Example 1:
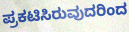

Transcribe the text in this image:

ಪ್ರಕಟಿಸಿರುವುದರಿಂದ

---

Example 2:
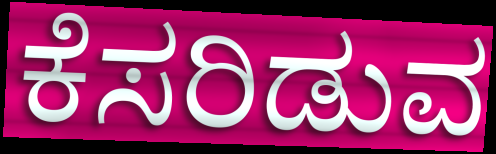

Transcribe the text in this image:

ಕೆಸರಿಡುವ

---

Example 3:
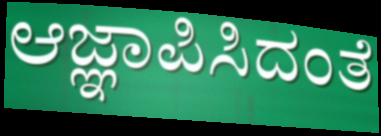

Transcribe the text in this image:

ಆಜ್ಞಾಪಿಸಿದಂತೆ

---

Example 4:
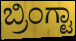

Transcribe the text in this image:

ಬ್ರಿಂಗ್ಟಾ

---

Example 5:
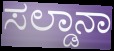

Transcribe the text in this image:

ಸಲ್ಡಾನಾ